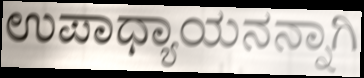
ಉಪಾಧ್ಯಾಯನನ್ನಾಗಿ